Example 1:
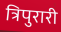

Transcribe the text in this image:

त्रिपुरारी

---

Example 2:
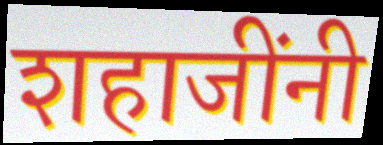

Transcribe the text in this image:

शहाजींनी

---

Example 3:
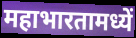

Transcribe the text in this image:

महाभारतामध्यें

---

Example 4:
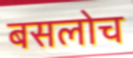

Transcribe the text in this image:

बसलोच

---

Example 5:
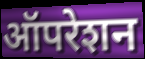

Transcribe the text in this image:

ऑपरेशन